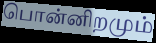
பொன்னிறமும்